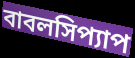
বাবলসিপ্যাপ